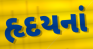
હૃદયનાં